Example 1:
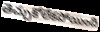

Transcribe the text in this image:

తెచ్చుకోలేకపోయింది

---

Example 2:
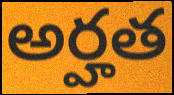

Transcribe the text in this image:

అర్హత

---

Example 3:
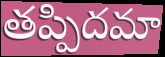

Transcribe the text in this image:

తప్పిదమా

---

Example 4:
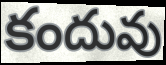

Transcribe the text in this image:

కందువు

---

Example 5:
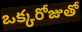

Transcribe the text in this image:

ఒక్కరోజుతో